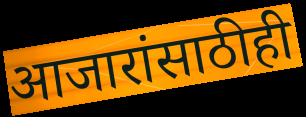
आजारांसाठीही